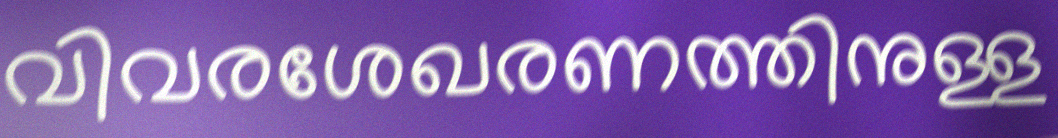
വിവരശേഖരണത്തിനുള്ള